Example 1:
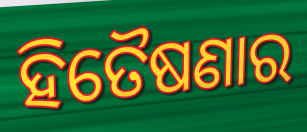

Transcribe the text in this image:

ହିତୈଷଣାର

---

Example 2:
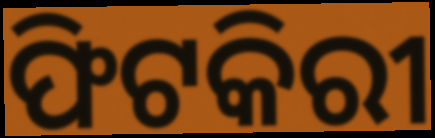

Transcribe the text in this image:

ଫିଟକିରୀ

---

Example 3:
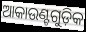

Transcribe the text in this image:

ଆକାଉଣ୍ଟଗୁଡ଼ିକ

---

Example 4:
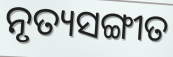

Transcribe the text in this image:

ନୃତ୍ୟସଙ୍ଗୀତ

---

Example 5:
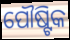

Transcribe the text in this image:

ପୌଷ୍ଟିକ